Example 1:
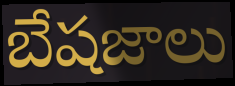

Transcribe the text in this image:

బేషజాలు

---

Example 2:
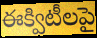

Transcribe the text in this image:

ఈక్విటీలపై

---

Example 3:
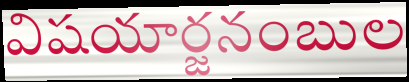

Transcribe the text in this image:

విషయార్జనంబుల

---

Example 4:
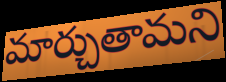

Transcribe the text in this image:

మార్చుతామని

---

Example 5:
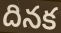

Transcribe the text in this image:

దినక